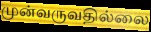
முன்வருவதில்லை